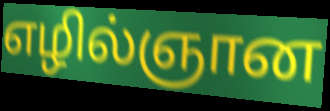
எழில்ஞான